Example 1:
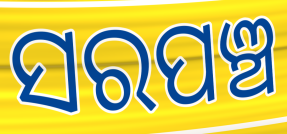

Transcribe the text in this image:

ସରପଞ୍ଚ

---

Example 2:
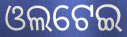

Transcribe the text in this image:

ଓଲଟେଇ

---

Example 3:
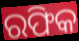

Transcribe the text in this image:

ରଫିକ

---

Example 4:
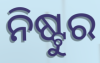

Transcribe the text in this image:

ନିଷ୍ଟୁର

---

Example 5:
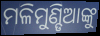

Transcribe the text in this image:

ମଳିମୁଣ୍ଡିଆଙ୍କୁ